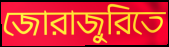
জোরাজুরিতে